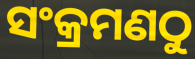
ସଂକ୍ରମଣଠୁ